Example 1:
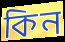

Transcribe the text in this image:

কিন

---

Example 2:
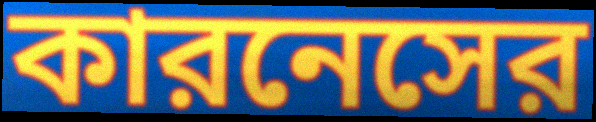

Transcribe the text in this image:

কারনেসের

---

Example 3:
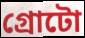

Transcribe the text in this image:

গ্রোটো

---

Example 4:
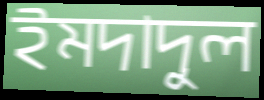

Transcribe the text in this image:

ইমদাদুল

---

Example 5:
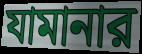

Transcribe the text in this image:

যামানার